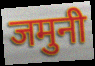
जमुनी